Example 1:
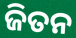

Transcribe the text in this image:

ଜିତନ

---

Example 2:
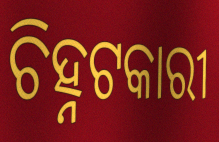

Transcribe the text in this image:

ଚିହ୍ନଟକାରୀ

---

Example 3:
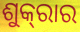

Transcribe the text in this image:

ଶୁକ୍‌ରାର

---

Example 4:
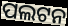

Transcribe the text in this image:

ପଲଟନ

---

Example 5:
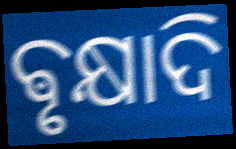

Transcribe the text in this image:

ଵୃକ୍ଷାଦି